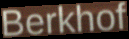
Berkhof